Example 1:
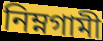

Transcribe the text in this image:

নিম্নগামী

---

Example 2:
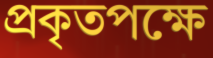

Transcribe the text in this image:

প্ৰকৃতপক্ষে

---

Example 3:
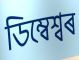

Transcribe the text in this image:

ডিম্বেশ্বৰ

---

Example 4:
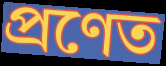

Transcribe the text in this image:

প্ৰণেত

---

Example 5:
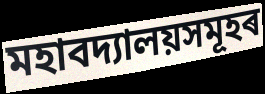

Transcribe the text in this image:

মহাবদ্যালয়সমূহৰ